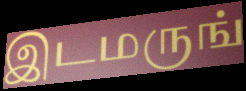
இடமருங்